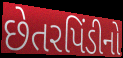
છેતરપિંડીનો